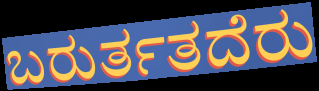
ಬರುರ್ತತದೆರು